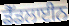
ਡੈੱਡਲਾਈਨ